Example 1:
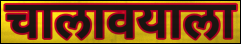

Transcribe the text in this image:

चालावयाला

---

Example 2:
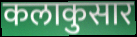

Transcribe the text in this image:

कलाकुसार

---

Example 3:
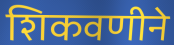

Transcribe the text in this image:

शिकवणीने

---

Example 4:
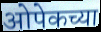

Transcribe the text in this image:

ओपेकच्या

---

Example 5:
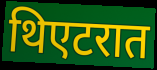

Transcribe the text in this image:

थिएटरात